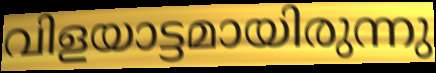
വിളയാട്ടമായിരുന്നു